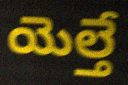
యెల్తే